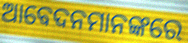
ଆବେଦନମାନଙ୍କରେ